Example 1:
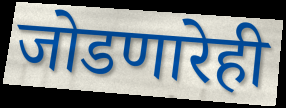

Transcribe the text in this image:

जोडणारेही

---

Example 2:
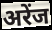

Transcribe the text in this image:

अरेंज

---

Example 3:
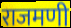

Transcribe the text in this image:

राजमणी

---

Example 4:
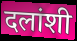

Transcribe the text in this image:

दलांशी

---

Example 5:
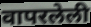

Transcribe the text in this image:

वापरलेली